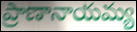
ప్రాణానాయమ్య